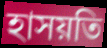
হাসয়তি